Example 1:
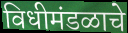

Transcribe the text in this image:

विधीमंडळाचे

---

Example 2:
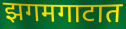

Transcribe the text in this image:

झगमगाटात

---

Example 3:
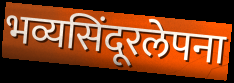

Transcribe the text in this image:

भव्यसिंदूरलेपना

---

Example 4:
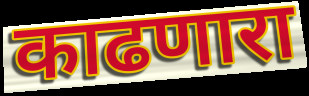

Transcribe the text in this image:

काढणारा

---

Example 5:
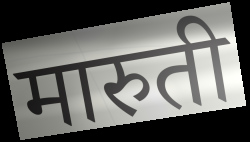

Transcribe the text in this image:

मारुती